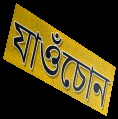
যাওঁচোন